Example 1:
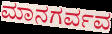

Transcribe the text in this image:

ಮಾನಗರ್ವವ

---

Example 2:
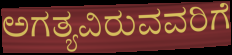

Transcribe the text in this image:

ಅಗತ್ಯವಿರುವವರಿಗೆ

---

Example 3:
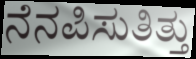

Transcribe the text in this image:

ನೆನಪಿಸುತಿತ್ತು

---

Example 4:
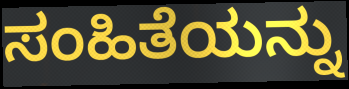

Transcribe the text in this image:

ಸಂಹಿತೆಯನ್ನು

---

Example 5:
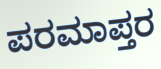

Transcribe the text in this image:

ಪರಮಾಪ್ತರ